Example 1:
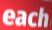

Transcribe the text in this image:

each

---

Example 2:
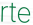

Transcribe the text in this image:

rte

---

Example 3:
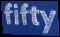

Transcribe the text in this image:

fifty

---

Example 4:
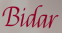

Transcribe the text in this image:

Bidar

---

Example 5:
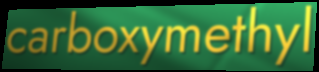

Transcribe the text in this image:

carboxymethyl